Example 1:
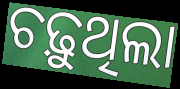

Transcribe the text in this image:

ଚଢ଼ୁଥିଲା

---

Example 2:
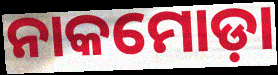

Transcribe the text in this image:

ନାକମୋଡ଼ା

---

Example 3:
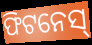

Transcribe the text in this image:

ଫିଟନେସ୍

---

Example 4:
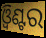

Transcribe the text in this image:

ଓ୍ଵିଣ୍ଟର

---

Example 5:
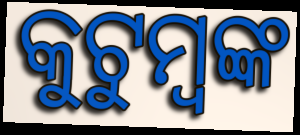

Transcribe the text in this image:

କୁଟୁମ୍ବଙ୍କ